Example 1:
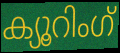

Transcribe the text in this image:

ക്യൂറിംഗ്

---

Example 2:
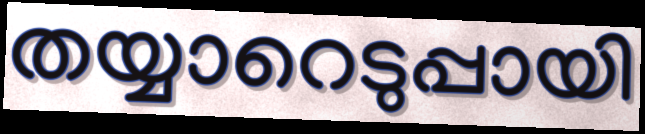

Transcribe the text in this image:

തയ്യാറെടുപ്പായി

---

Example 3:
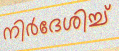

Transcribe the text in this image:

നിർദേശിച്ച്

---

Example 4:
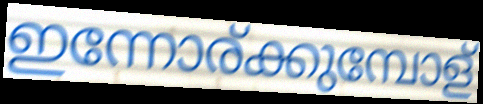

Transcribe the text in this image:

ഇന്നോര്ക്കുമ്പോള്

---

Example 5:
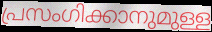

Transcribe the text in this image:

പ്രസംഗിക്കാനുമുള്ള